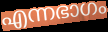
എന്നഭാഗം